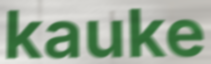
kauke